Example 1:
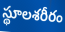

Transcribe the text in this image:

స్థూలశరీరం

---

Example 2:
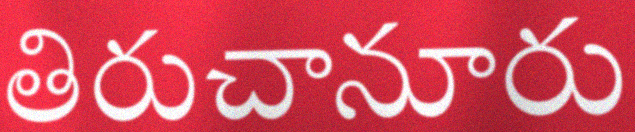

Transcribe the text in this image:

తిరుచానూరు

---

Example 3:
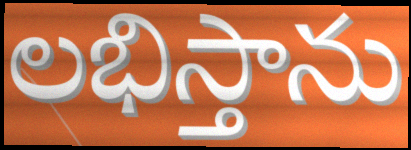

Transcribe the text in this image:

లభిస్తాను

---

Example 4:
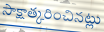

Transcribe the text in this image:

సాక్షాత్కరించినట్లు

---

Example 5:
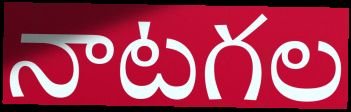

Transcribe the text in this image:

నాటగల